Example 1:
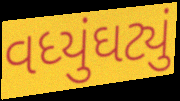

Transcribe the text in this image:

વધ્યુંઘટ્યું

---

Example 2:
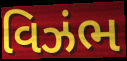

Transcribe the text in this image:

વિઝંભ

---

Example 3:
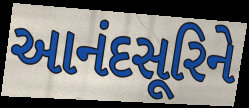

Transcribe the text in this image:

આનંદસૂરિને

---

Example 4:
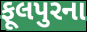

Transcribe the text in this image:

ફૂલપુરના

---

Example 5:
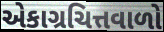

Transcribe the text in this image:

એકાગ્રચિત્તવાળો